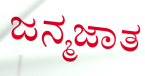
ಜನ್ಮಜಾತ